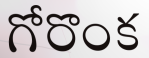
గోరొంక